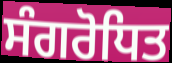
ਸੰਗਰੋਧਿਤ